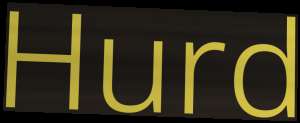
Hurd